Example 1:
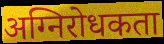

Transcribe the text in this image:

अग्निरोधकता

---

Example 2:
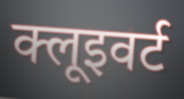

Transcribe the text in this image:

क्लूइवर्ट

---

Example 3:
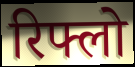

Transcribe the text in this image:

रिफ्लो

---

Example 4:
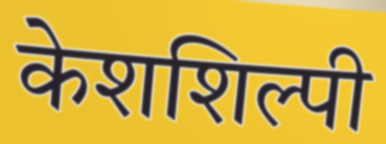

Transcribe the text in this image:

केशशिल्पी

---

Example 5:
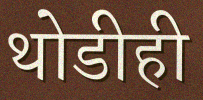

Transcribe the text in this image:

थोडीही